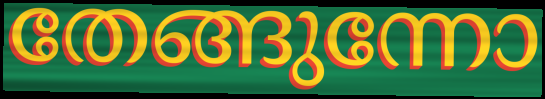
തേങ്ങുന്നോ